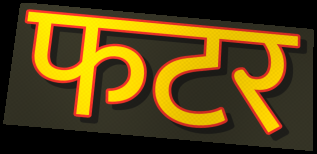
फटर